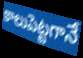
కాలుపెట్టగానే